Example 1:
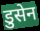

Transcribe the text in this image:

डुसेन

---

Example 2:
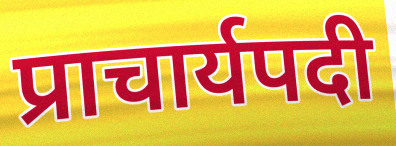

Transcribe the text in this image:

प्राचार्यपदी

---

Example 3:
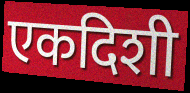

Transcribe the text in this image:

एकदिशी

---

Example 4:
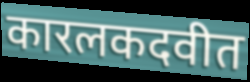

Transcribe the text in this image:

कारलकदवीत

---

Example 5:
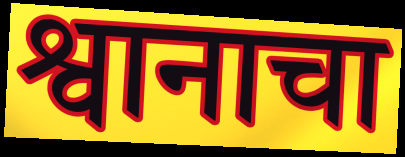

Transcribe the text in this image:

श्वानाचा